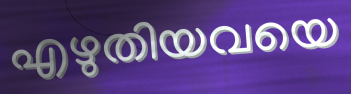
എഴുതിയവയെ